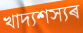
খাদ্যশস্যৰ